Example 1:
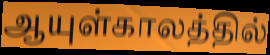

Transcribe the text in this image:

ஆயுள்காலத்தில்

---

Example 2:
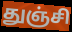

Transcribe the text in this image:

துஞ்சி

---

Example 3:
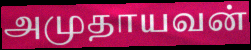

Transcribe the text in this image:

அமுதாயவன்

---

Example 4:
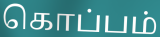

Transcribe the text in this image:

கொப்பம்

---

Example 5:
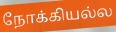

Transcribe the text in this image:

நோக்கியல்ல